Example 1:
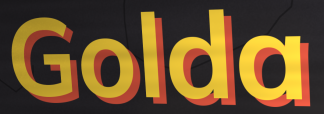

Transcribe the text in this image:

Golda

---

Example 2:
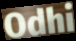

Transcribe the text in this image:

Odhi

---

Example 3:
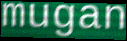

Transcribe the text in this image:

mugan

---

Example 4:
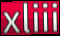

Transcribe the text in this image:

xliii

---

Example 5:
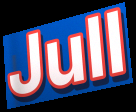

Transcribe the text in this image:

Jull